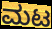
ಮಟ